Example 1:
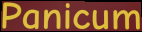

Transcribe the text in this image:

Panicum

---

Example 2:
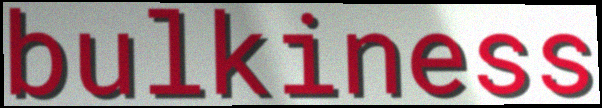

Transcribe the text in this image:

bulkiness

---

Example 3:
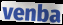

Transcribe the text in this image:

venba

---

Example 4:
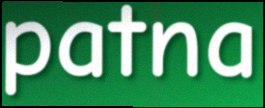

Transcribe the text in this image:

patna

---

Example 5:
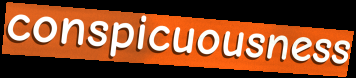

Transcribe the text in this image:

conspicuousness